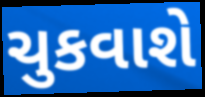
ચુકવાશે